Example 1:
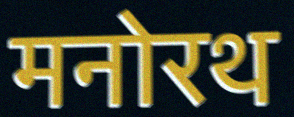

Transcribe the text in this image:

मनोरथ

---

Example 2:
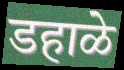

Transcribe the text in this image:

डहाळे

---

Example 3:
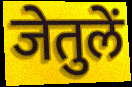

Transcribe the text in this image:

जेतुलें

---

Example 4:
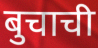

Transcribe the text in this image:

बुचाची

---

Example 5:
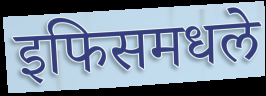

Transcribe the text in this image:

इफिसमधले